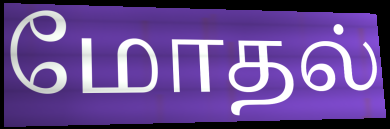
மோதல்